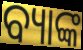
ବ୍ୟାଙ୍କ